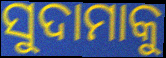
ସୁଦାମାକୁ